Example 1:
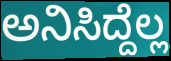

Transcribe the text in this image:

ಅನಿಸಿದ್ದೆಲ್ಲ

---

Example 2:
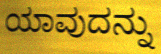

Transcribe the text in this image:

ಯಾವುದನ್ನು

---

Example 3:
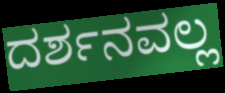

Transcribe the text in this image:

ದರ್ಶನವಲ್ಲ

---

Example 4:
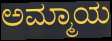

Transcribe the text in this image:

ಅಮ್ಮಾಯ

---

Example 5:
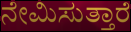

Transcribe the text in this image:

ನೇಮಿಸುತ್ತಾರೆ